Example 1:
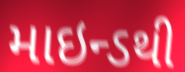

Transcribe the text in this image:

માઇન્ડથી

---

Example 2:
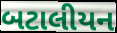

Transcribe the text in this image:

બટાલીયન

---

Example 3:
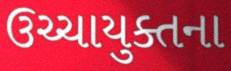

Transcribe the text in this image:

ઉચ્ચાયુક્તના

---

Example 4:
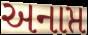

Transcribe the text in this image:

અનાપ્ત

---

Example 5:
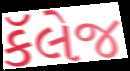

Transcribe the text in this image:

કૅલેજ